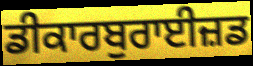
ਡੀਕਾਰਬੁਰਾਈਜ਼ਡ